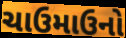
ચાઉમાઉનો